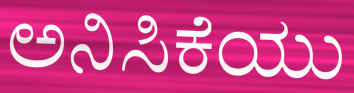
ಅನಿಸಿಕೆಯು